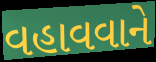
વહાવવાને